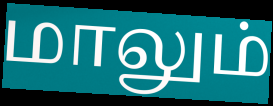
மாலும்